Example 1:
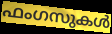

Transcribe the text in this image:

ഫംഗസുകൾ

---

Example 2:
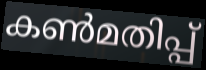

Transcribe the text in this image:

കൺമതിപ്പ്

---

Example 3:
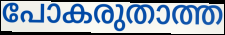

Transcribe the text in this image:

പോകരുതാത്ത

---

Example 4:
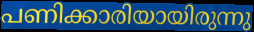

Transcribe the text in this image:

പണിക്കാരിയായിരുന്നു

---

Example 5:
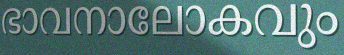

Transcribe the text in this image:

ഭാവനാലോകവും